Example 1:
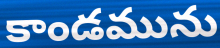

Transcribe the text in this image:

కాండమును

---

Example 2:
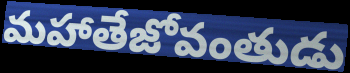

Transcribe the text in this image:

మహాతేజోవంతుడు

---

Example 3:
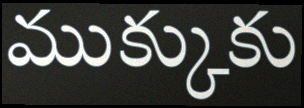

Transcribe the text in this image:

ముక్కుకు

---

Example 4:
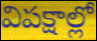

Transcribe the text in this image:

విపక్షాల్లో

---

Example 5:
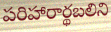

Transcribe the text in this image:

పరిహారార్థబలిని